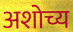
अशोच्य